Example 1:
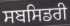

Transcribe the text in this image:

ਸਬਸਿਡਰੀ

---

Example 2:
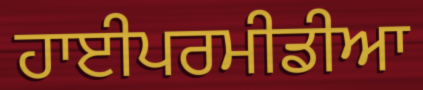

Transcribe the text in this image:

ਹਾਈਪਰਮੀਡੀਆ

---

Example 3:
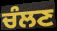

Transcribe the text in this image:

ਚੰਲਣ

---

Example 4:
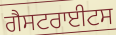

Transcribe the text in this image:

ਗੈਸਟਰਾਈਟਸ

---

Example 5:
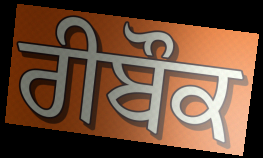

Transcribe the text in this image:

ਰੀਬੌਕ